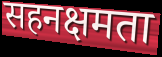
सहनक्षमता